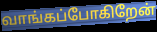
வாங்கப்போகிறேன்